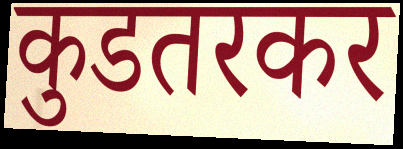
कुडतरकर